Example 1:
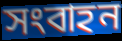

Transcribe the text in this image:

সংবাহন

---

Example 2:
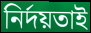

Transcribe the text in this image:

নির্দয়তাই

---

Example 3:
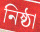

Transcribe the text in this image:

নিষ্ঠা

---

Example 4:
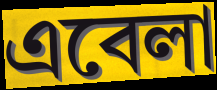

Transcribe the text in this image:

এবেলা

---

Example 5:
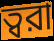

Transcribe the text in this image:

ত্বরা